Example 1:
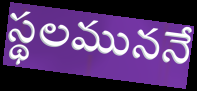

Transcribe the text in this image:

స్థలముననే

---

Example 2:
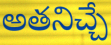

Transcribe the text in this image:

అతనిచ్చే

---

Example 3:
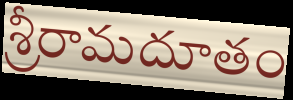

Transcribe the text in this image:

శ్రీరామదూతం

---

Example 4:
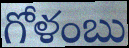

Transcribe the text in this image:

గోళంబు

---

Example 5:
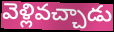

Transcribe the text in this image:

వెళ్లివచ్చాడు